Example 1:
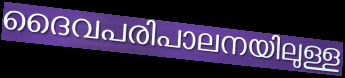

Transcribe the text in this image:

ദൈവപരിപാലനയിലുള്ള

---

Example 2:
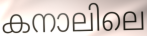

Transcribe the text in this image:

കനാലിലെ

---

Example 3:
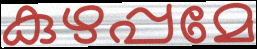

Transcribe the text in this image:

കുഴപ്പമേ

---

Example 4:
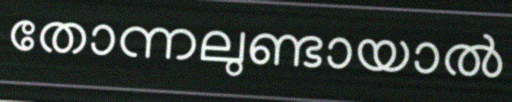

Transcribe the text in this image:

തോന്നലുണ്ടായാൽ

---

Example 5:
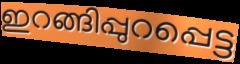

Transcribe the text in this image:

ഇറങ്ങിപ്പുറപ്പെട്ട